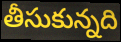
తీసుకున్నది